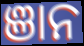
ଞାନ